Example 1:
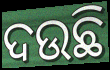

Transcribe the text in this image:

ଦଉଛି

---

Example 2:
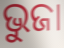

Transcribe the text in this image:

ଭୁଜା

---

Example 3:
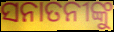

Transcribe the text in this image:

ସନାତନୀଙ୍କୁ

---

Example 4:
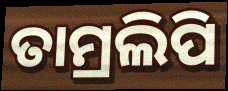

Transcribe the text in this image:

ତାମ୍ରଲିପି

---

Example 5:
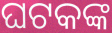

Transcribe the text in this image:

ଘଟକଙ୍କ